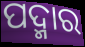
ପଦ୍ମାର